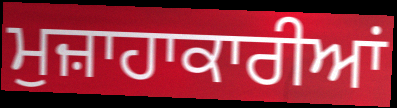
ਮੁਜ਼ਾਹਾਕਾਰੀਆਂ